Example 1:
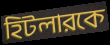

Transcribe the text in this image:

হিটলারকে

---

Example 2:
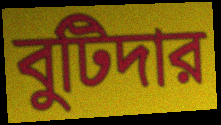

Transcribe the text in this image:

বুটিদার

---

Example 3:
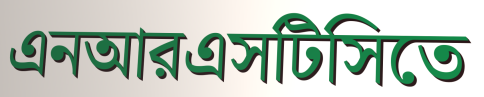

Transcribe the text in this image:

এনআরএসটিসিতে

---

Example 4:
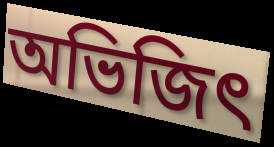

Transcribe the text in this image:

অভিজিৎ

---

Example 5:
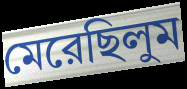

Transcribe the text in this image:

মেরেছিলুম